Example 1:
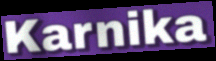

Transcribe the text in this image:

Karnika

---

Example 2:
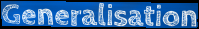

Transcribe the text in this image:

Generalisation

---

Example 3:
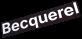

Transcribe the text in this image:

Becquerel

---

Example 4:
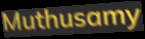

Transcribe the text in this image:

Muthusamy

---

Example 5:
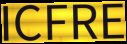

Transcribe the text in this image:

ICFRE